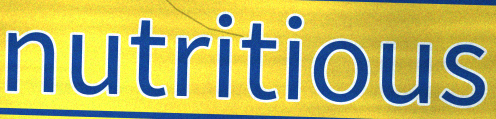
nutritious